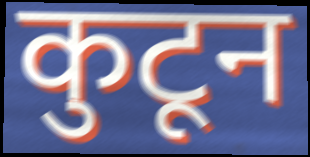
कुटून